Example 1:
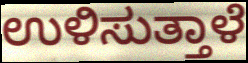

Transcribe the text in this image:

ಉಳಿಸುತ್ತಾಳೆ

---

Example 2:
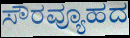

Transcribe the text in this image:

ಸೌರವ್ಯೂಹದ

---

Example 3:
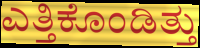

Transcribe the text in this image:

ಎತ್ತಿಕೊಂಡಿತ್ತು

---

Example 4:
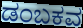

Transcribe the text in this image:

ಡಂಬಕವ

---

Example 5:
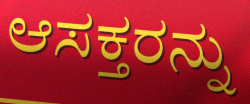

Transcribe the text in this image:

ಆಸಕ್ತರನ್ನು